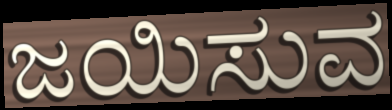
ಜಯಿಸುವ